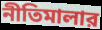
নীতিমালার